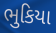
ભુકિયા